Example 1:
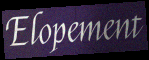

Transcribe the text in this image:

Elopement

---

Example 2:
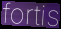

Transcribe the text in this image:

fortis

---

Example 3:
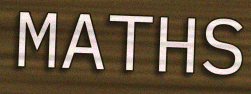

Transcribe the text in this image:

MATHS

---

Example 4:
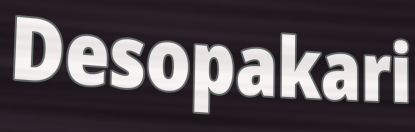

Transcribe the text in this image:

Desopakari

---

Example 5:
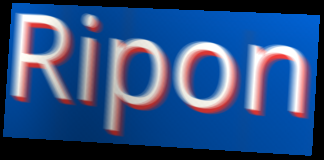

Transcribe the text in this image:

Ripon